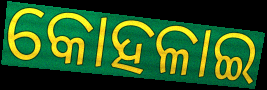
କୋହଳାଇ